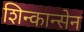
शिन्कान्सेन